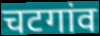
चटगांव